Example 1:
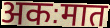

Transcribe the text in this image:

अकःमात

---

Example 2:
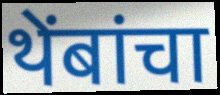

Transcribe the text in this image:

थेंबांचा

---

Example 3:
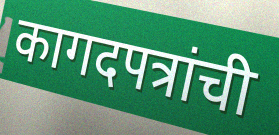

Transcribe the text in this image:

कागदपत्रांची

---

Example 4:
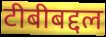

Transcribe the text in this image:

टीबीबद्दल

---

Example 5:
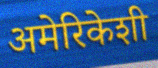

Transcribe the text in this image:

अमेरिकेशी